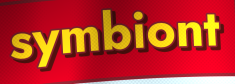
symbiont